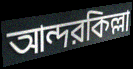
আন্দরকিল্লা